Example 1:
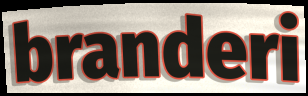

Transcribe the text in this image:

branderi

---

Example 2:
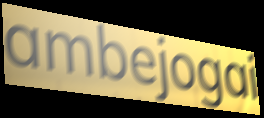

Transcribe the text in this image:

ambejogai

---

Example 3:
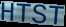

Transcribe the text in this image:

HTST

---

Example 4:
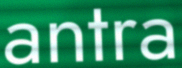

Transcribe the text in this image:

antra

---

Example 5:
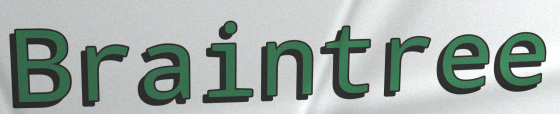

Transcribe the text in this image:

Braintree